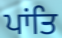
ਪਾਂਤਿ